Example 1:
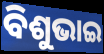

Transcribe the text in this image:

ବିଶୁଭାଇ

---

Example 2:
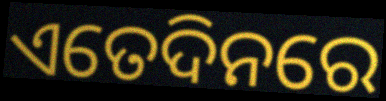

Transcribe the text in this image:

ଏତେଦିନରେ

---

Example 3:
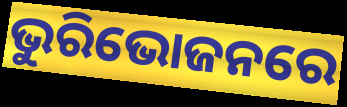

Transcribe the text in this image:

ଭୁରିଭୋଜନରେ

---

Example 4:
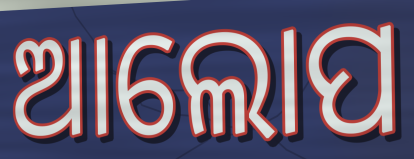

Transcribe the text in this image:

ଆଲୋପ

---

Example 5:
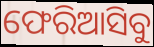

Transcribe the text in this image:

ଫେରିଆସିବୁ